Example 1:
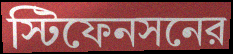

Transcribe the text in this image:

স্টিফেনসনের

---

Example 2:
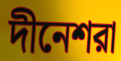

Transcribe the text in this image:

দীনেশরা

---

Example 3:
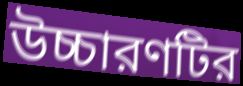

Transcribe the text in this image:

উচ্চারণটির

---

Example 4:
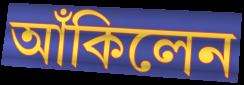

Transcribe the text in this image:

আঁকিলেন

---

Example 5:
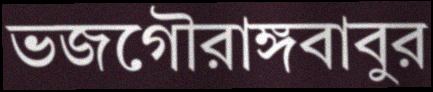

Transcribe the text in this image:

ভজগৌরাঙ্গবাবুর